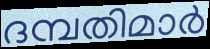
ദമ്പതിമാർ